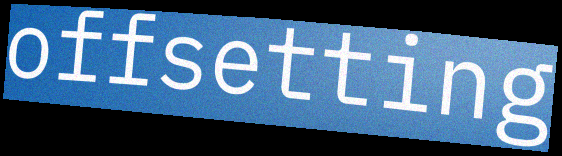
offsetting